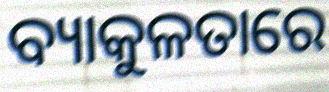
ବ୍ୟାକୁଳତାରେ